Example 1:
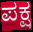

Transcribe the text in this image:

ಪಕ್ಷ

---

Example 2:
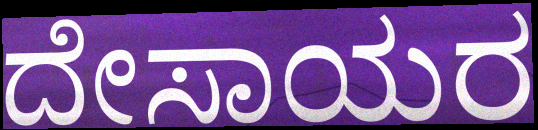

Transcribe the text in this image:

ದೇಸಾಯರ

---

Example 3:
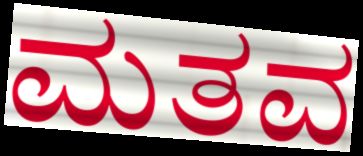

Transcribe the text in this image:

ಮತವ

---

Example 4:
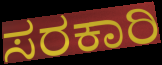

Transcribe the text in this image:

ಸರಕಾರಿ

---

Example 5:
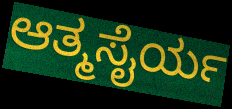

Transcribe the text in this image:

ಆತ್ಮಸೈರ್ಯ